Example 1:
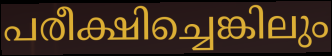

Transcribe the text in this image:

പരീക്ഷിച്ചെങ്കിലും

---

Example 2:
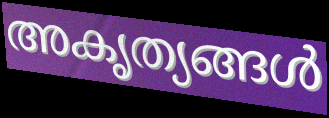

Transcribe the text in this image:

അകൃത്യങ്ങൾ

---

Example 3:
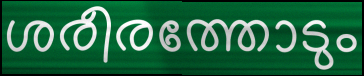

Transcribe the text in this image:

ശരീരത്തോടും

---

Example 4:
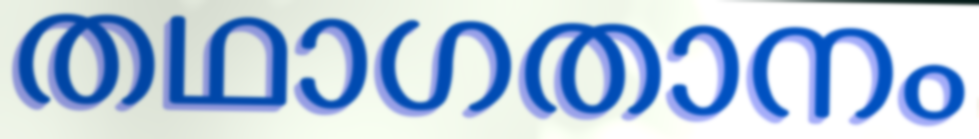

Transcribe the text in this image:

തഥാഗതാനം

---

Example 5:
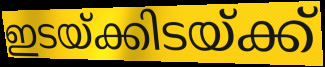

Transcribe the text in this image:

ഇടയ്ക്കിടയ്ക്ക്